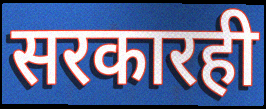
सरकारही